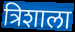
त्रिशाला